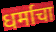
धर्माचा